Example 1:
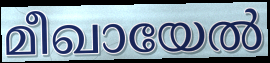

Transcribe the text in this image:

മീഖായേൽ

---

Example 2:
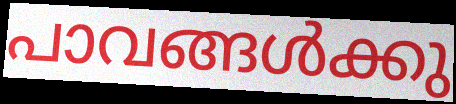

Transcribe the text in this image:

പാവങ്ങൾക്കു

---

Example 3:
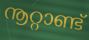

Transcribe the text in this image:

നൂറ്റാണ്ട്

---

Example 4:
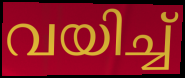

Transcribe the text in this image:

വയിച്ച്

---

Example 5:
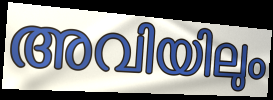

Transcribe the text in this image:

അവിയിലും